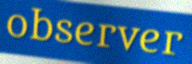
observer